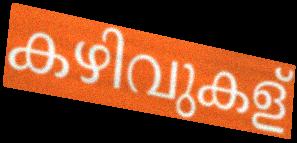
കഴിവുകള്